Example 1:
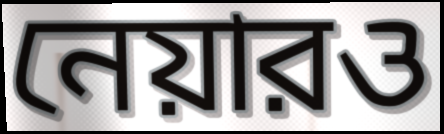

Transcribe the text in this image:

নেয়ারও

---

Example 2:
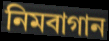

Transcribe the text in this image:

নিমবাগান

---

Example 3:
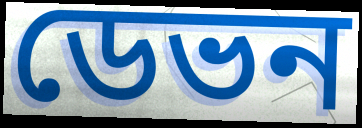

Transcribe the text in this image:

ডেভন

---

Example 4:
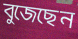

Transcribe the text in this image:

বুজেছেন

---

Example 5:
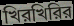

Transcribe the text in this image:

খিরখিরির